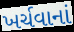
ખર્ચવાનાં